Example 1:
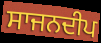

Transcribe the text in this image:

ਸਾਜਨਦੀਪ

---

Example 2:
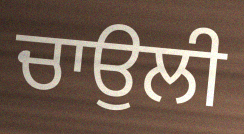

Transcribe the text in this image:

ਚਾਉਲੀ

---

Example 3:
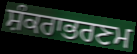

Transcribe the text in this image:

ਸ਼ੰਕਰਾਭਰਣਮ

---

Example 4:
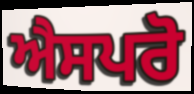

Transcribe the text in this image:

ਐਸਪਰੋ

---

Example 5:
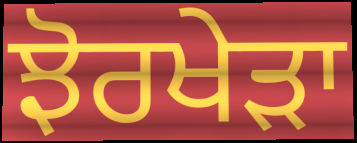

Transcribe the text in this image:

ਝੋਰਖੇੜਾ